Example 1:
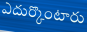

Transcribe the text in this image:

ఎదుర్కొంటారు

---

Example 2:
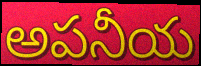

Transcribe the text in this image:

అపనీయ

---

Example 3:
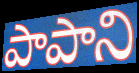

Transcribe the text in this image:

పాపాని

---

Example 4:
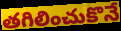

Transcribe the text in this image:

తగిలించుకొనే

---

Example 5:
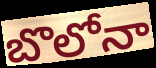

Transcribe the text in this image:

బొలోనా